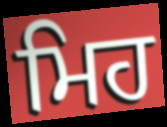
ਮਿਹ